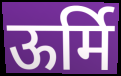
ऊर्मि